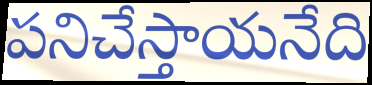
పనిచేస్తాయనేది